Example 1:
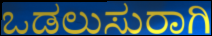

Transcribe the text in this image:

ಒಡಲುಸುರಾಗಿ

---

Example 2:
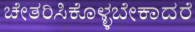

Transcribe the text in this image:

ಚೇತರಿಸಿಕೊಳ್ಳಬೇಕಾದರೆ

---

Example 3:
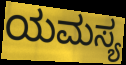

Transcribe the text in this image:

ಯಮಸ್ಯ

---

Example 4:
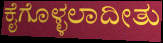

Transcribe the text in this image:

ಕೈಗೊಳ್ಳಲಾದೀತು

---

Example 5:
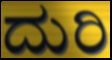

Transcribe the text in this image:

ದುರಿ